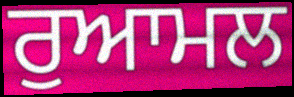
ਰੁਆਮਲ